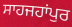
ਸਾਹਜਹਾਂਪੁਰ